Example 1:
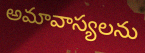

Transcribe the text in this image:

అమావాస్యలను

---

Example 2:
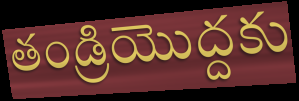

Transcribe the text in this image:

తండ్రియొద్దకు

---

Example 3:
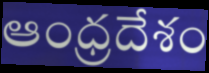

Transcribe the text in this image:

ఆంధ్రదేశం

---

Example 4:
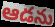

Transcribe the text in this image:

ఆడను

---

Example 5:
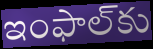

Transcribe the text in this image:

ఇంఫాల్‌కు